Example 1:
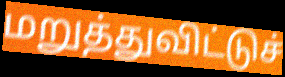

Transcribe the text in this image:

மறுத்துவிட்டுச்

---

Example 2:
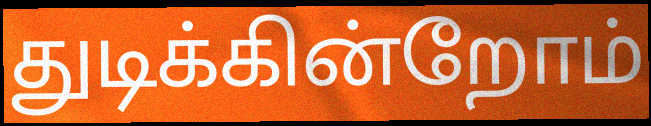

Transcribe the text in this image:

துடிக்கின்றோம்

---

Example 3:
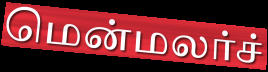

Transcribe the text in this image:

மென்மலர்ச்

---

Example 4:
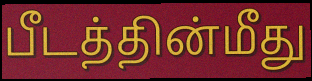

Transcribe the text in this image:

பீடத்தின்மீது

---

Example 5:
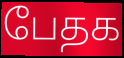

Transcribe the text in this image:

பேதக